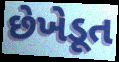
છેખેડૂત